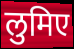
लुमिए